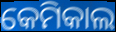
କେମିକାଲ